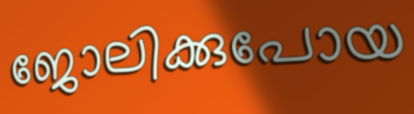
ജോലിക്കുപോയ